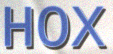
HOX